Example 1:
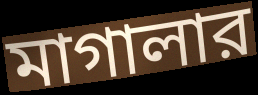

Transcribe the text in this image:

মাগালার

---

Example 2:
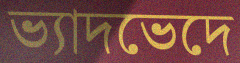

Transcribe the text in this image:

ভ্যাদভেদে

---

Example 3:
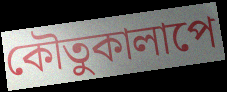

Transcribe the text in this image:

কৌতুকালাপে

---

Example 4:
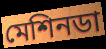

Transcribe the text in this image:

মেশিনডা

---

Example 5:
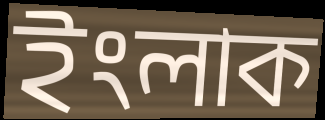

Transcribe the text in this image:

ইংলাক